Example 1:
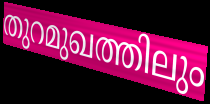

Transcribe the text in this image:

തുറമുഖത്തിലും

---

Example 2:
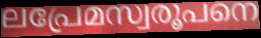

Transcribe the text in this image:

ലപ്രേമസ്വരൂപനെ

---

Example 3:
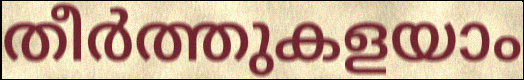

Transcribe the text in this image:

തീർത്തുകളയാം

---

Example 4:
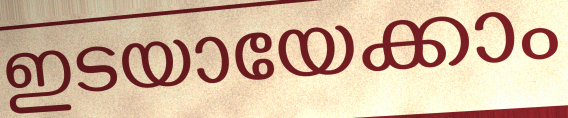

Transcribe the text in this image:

ഇടയായേക്കാം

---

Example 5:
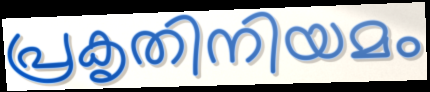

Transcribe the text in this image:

പ്രകൃതിനിയമം